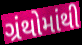
ગ્રંથોમાંથી